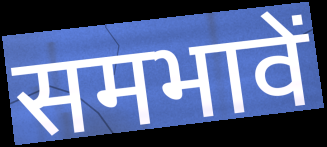
समभावें